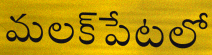
మలక్‌పేటలో